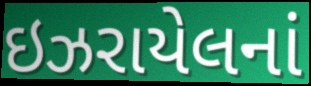
ઇઝરાયેલનાં